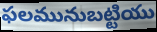
ఫలమునుబట్టియు